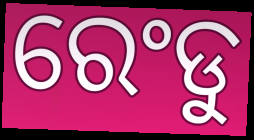
ରେଂଡୁ